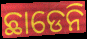
ଛାଡେନି